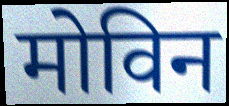
मोविन